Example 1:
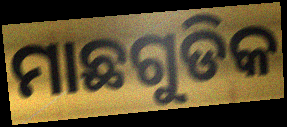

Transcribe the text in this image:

ମାଛଗୁଡିକ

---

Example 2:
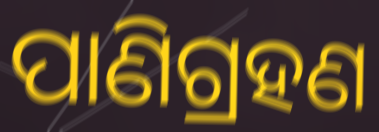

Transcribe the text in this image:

ପାଣିଗ୍ରହଣ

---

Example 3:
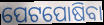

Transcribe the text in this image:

ପେଟପୋଷିବା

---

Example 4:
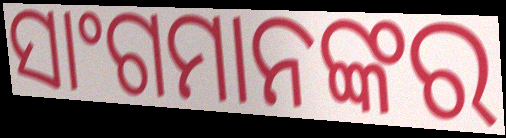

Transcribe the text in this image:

ସାଂଗମାନଙ୍କର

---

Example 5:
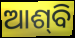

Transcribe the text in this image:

ଆଶ୍‍ବି